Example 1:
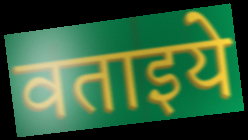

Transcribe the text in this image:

वताइये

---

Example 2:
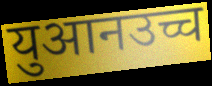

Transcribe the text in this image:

युआनउच्च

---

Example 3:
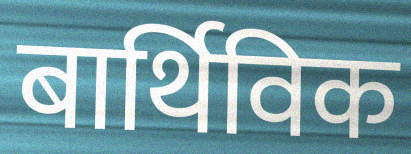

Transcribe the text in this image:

बार्थिविक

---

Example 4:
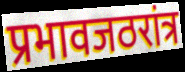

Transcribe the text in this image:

प्रभावजठरांत्र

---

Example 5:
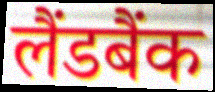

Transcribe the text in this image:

लैंडबैंक